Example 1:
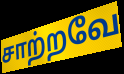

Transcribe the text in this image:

சாற்றவே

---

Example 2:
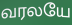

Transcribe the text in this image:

வரலயே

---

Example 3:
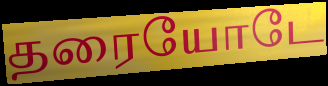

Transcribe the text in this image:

தரையோடே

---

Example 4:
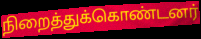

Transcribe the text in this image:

நிறைத்துக்கொண்டனர்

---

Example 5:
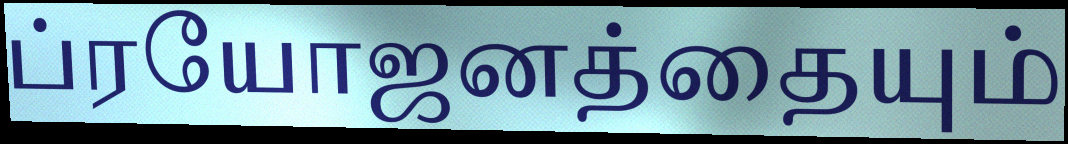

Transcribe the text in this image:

ப்ரயோஜனத்தையும்